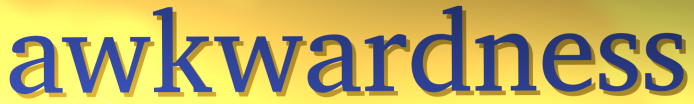
awkwardness